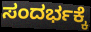
ಸಂದರ್ಭಕ್ಕೆ